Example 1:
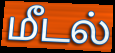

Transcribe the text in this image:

மீடல்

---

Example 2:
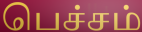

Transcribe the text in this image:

பெச்சம்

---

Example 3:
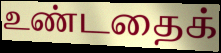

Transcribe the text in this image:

உண்டதைக்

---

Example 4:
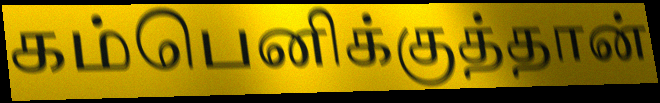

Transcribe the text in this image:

கம்பெனிக்குத்தான்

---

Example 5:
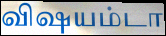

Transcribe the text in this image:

விஷயம்டா